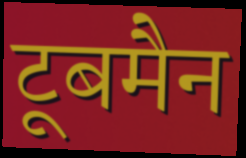
टूबमैन